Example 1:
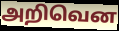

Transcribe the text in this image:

அறிவென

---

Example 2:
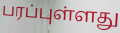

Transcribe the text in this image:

பரப்புள்ளது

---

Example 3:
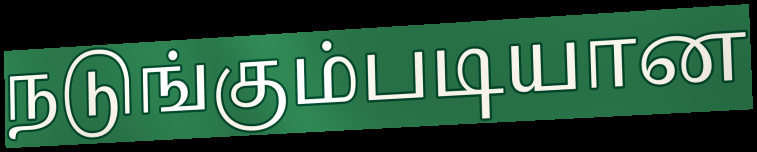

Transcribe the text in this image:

நடுங்கும்படியான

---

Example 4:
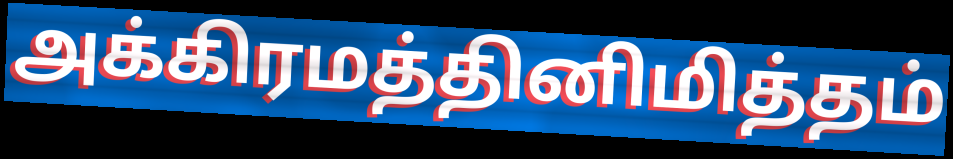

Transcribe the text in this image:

அக்கிரமத்தினிமித்தம்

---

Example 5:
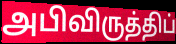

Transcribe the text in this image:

அபிவிருத்திப்